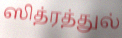
ஸித்ரத்துல்